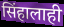
सिंहालाही